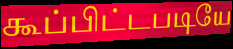
கூப்பிட்டபடியே